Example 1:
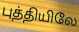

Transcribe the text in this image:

புத்தியிலே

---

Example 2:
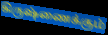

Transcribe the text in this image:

கிருஷ்ணைக்கும்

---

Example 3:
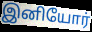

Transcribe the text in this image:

இனியோர்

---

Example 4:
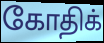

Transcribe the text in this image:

கோதிக்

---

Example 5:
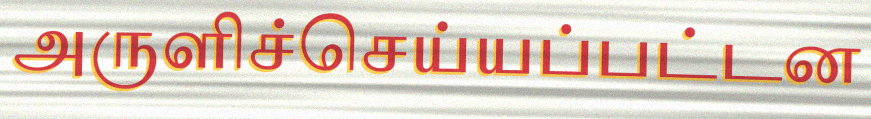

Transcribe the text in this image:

அருளிச்செய்யப்பட்டன